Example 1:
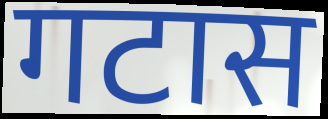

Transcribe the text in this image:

गटास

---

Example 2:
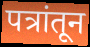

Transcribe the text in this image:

पत्रांतून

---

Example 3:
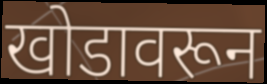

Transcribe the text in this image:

खोडावरून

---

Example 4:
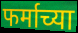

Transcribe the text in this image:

फर्माच्या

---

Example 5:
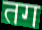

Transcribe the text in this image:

तग